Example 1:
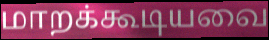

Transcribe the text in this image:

மாறக்கூடியவை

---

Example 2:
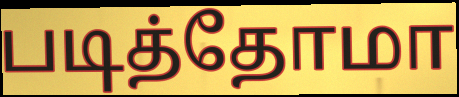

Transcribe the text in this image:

படித்தோமா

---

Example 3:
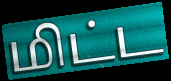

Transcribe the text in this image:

மிட்ட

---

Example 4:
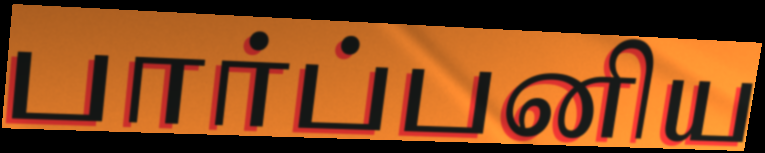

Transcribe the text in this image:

பார்ப்பனிய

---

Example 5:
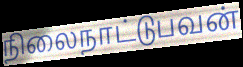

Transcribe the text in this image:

நிலைநாட்டுபவன்